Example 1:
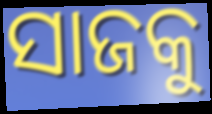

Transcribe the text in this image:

ସାଜକୁ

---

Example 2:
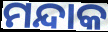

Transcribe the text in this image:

ମନ୍ଦାକ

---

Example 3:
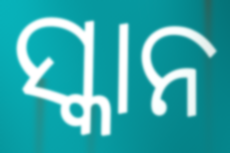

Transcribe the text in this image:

ସ୍କାନ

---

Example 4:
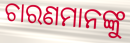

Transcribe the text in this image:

ଚାରଣମାନଙ୍କୁ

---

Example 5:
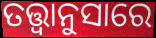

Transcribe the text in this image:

ତତ୍ତ୍ୱାନୁସାରେ